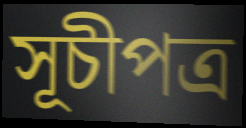
সূচীপত্র